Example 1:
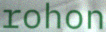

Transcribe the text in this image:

rohon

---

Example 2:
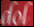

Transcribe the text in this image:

dol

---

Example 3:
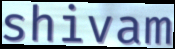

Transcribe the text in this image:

shivam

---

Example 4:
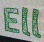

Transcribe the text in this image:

Ell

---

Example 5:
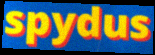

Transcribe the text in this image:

spydus